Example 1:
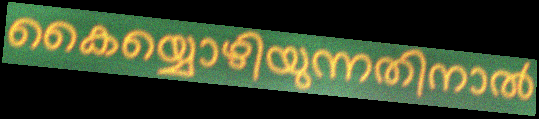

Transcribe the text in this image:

കൈയ്യൊഴിയുന്നതിനാൽ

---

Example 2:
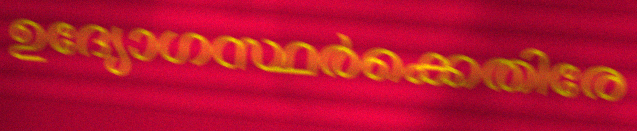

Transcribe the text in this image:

ഉദ്യോഗസ്ഥർക്കെതിരേ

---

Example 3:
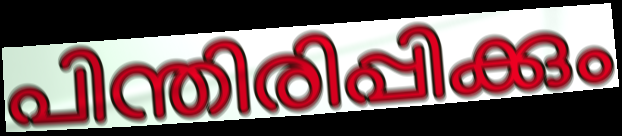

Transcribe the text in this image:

പിന്തിരിപ്പിക്കും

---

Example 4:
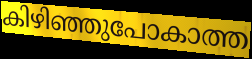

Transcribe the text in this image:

കിഴിഞ്ഞുപോകാത്ത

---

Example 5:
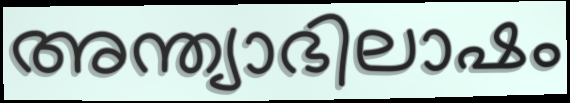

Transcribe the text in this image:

അന്ത്യാഭിലാഷം